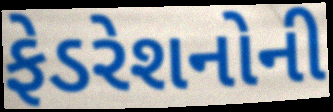
ફેડરેશનોની